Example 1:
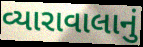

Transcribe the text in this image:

વ્યારાવાલાનું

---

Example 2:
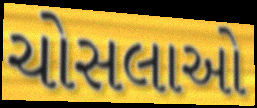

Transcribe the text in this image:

ચોસલાઓ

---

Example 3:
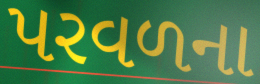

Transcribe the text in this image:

પરવળના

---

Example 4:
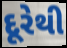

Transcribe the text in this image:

દૂરેથી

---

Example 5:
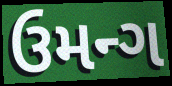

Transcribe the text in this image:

ઉમન્ગ